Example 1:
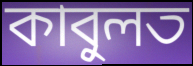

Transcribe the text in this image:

কাবুলত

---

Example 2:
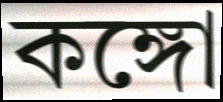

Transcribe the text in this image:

কঙ্গো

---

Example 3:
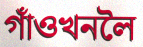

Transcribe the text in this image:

গাঁওখনলৈ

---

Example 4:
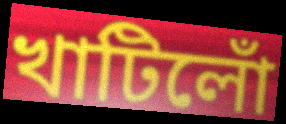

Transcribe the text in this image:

খাটিলোঁ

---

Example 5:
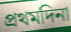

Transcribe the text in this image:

প্ৰথমদিনা